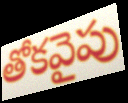
తోకవైపు